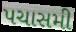
પચાસમી